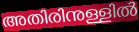
അതിരിനുള്ളിൽ